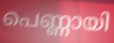
പെണ്ണായി